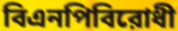
বিএনপিবিরোধী